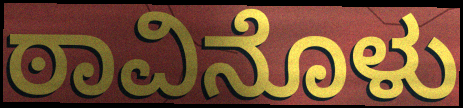
ಠಾವಿನೊಳು